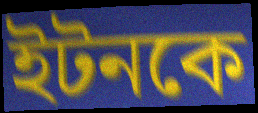
ইটনকে